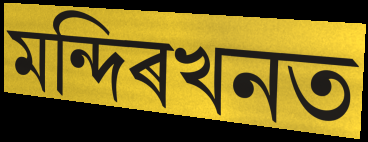
মন্দিৰখনত